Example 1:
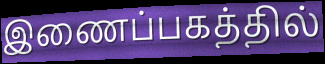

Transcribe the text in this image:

இணைப்பகத்தில்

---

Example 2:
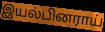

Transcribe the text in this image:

இயல்பினராய்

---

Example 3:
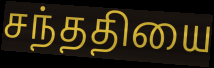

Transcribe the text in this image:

சந்ததியை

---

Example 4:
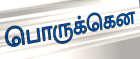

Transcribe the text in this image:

பொருக்கென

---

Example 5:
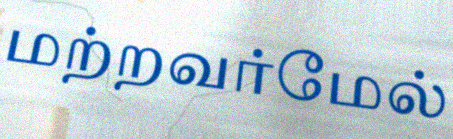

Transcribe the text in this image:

மற்றவர்மேல்